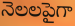
నెలలపైగా